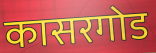
कासरगोड